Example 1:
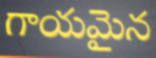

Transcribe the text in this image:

గాయమైన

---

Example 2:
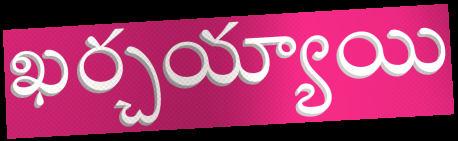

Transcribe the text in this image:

ఖర్చయ్యాయి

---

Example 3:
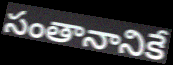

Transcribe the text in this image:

సంతానానికే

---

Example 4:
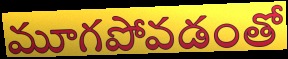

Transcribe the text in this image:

మూగపోవడంతో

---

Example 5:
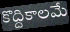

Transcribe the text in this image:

కొద్దికాలమే